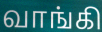
வாங்கி